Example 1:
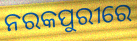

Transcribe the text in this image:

ନରକପୁରୀରେ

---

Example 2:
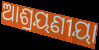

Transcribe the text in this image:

ଆଶ୍ରୟଣୀୟା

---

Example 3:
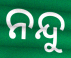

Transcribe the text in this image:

ନନ୍ଦୁ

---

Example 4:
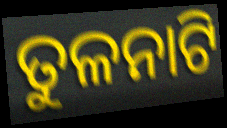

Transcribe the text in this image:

ତୁଳନାଟି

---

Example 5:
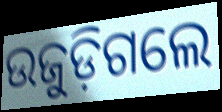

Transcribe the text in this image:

ଉଜୁଡ଼ିଗଲେ